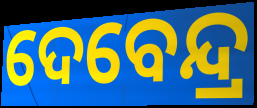
ଦେବେନ୍ଦ୍ର